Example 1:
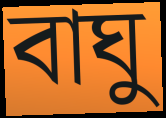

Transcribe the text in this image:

বাঘু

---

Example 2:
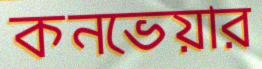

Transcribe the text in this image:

কনভেয়ার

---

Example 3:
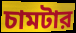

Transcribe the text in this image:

চামটার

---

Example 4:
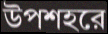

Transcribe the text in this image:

উপশহরে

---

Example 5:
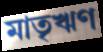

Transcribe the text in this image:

মাতৃঋণ